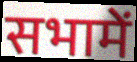
सभामें